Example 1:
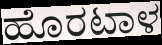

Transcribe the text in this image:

ಹೊರಟಾಳ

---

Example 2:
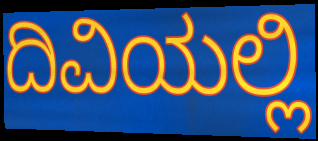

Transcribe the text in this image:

ದಿವಿಯಲ್ಲಿ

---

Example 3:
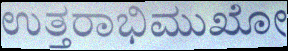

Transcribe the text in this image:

ಉತ್ತರಾಭಿಮುಖೋ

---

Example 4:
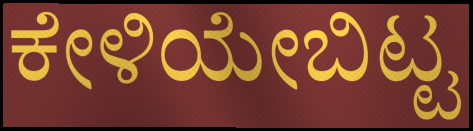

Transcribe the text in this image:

ಕೇಳಿಯೇಬಿಟ್ಟ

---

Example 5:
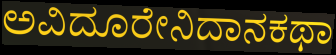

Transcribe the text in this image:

ಅವಿದೂರೇನಿದಾನಕಥಾ